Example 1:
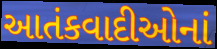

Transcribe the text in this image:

આતંકવાદીઓનાં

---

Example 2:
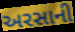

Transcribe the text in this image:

અરસાની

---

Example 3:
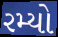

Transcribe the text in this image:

રમ્યો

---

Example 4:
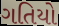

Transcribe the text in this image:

ગતિયો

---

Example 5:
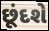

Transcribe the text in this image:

છૂંદશે